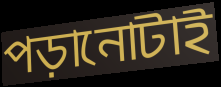
পড়ানোটাই